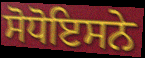
ਸੋਧੋਇਸਨੇ